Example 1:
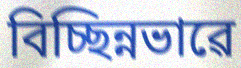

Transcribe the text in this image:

বিচ্ছিন্নভাৱে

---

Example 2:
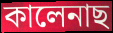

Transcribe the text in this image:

কালেনাছ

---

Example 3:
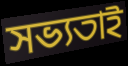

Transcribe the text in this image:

সভ্যতাই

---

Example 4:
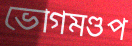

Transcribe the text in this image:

ভোগমণ্ডপ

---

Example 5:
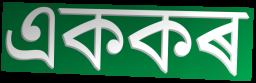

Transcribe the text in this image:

এককৰ